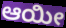
ಆಯೀ